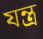
যন্ত্র